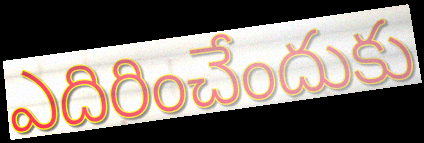
ఎదిరించేందుకు